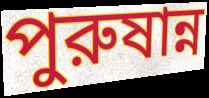
পুরুষান্ন